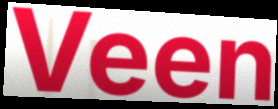
Veen